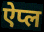
ऐप्ल